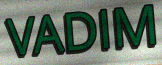
VADIM